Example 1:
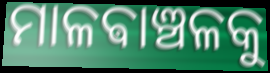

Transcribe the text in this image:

ମାଳଵାଞ୍ଚଳକୁ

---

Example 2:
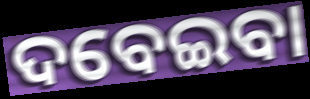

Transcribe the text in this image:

ଦବେଇବା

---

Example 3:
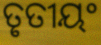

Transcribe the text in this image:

ତୃତୀୟଂ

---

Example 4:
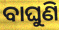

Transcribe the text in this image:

ବାଘୁଣି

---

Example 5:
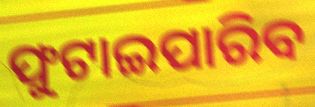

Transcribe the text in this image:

ଫୁଟାଇପାରିବ